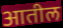
आतील